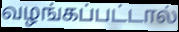
வழங்கப்பட்டால்